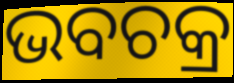
ଭବଚକ୍ର